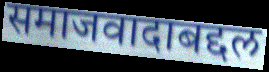
समाजवादाबद्दल